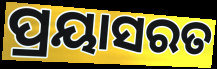
ପ୍ରୟାସରତ